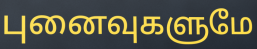
புனைவுகளுமே